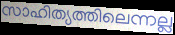
സാഹിത്യത്തിലെന്നല്ല